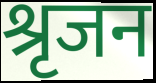
श्रृजन